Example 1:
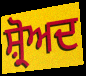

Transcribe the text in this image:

ਸ਼੍ਰੋਅਦ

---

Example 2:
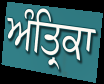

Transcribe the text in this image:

ਅੰਤ੍ਰਿਕਾ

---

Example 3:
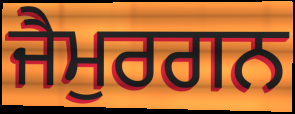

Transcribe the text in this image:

ਜੈਮੁਰਗਨ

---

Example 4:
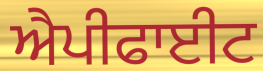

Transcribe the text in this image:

ਐਪੀਫਾਈਟ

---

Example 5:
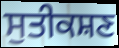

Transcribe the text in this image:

ਸੁਤੀਕਸ਼ਣ